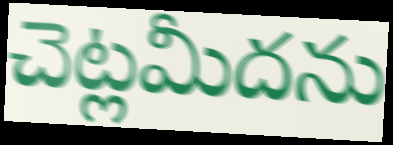
చెట్లమీదను